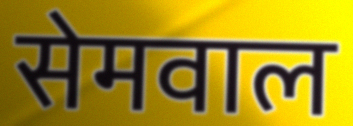
सेमवाल